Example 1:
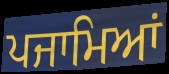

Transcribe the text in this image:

ਪਜਾਮਿਆਂ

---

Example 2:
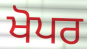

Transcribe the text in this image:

ਖੋਪਰ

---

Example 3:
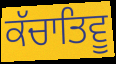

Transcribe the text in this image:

ਕੱਚਾਤਿਵੂ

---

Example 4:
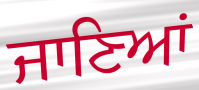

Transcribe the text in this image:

ਜਾਣਿਆਂ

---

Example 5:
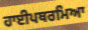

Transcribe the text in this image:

ਹਾਈਪਥਰਮਿਆ